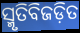
ସ୍ମୃତିବିଜଡ଼ିତ